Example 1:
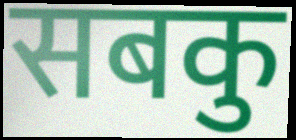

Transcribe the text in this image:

सबकु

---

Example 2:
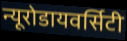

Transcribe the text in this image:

न्यूरोडायवर्सिटी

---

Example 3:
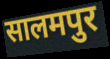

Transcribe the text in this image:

सालमपुर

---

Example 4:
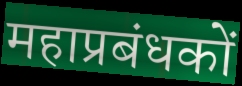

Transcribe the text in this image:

महाप्रबंधकों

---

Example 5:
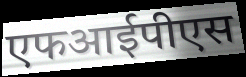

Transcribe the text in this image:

एफआईपीएस